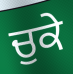
ਚੁਕੇ